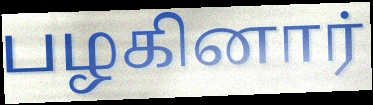
பழகினார்